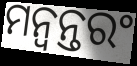
ମନ୍ବନ୍ତରଂ